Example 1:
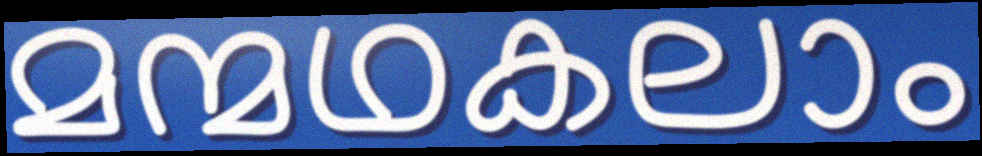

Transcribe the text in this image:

മന്മഥകലാം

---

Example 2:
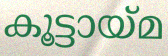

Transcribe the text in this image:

കൂട്ടായ്മ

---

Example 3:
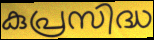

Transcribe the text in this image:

കുപ്രസിദ്ധ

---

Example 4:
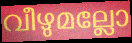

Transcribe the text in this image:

വീഴുമല്ലോ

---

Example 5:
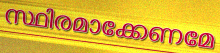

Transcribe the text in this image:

സ്ഥിരമാക്കേണമേ